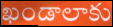
ఖండాలాకు